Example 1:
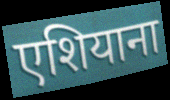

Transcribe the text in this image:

एशियाना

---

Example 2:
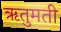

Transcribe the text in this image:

ऋतुमती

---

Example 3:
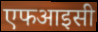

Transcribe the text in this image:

एफआइसी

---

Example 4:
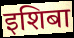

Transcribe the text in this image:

इशिबा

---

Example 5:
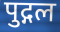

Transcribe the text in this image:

पुद्गल